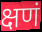
क्षणं